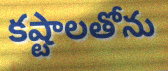
కష్టాలతోను